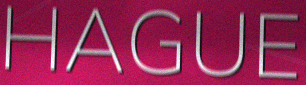
HAGUE